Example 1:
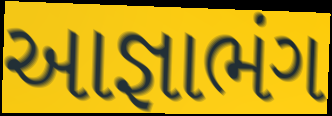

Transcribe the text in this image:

આજ્ઞાભંગ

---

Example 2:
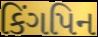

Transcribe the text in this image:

કિંગપિન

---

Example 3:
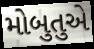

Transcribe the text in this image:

મોબુતુએ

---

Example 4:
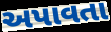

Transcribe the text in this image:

અપાવતા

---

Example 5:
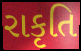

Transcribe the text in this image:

રાકૃતિ